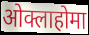
ओक्लाहोमा